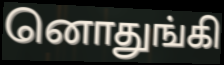
னொதுங்கி